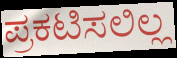
ಪ್ರಕಟಿಸಲಿಲ್ಲ